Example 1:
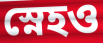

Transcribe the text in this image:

স্নেহও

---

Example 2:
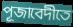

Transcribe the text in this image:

পূজাবেদীতে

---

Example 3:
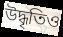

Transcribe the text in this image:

উদ্ধৃতিও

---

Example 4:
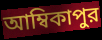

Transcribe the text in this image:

আম্বিকাপুর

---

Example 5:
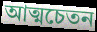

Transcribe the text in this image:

আত্মচেতন